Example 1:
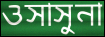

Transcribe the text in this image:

ওসাসুনা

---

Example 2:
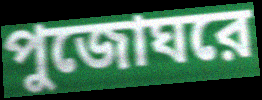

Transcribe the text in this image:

পুজোঘরে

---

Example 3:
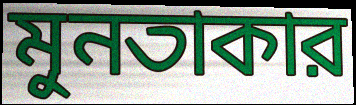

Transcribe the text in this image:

মুনতাকার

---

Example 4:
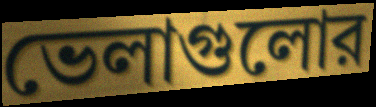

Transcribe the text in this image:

ভেলাগুলোর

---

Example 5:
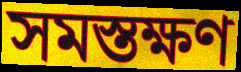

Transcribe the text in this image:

সমস্তক্ষণ